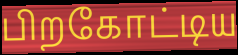
பிறகோட்டிய